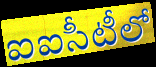
ఐఐసీటీలో